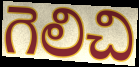
గెలిచి